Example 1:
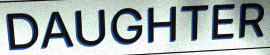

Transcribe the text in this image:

DAUGHTER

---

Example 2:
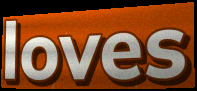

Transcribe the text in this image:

loves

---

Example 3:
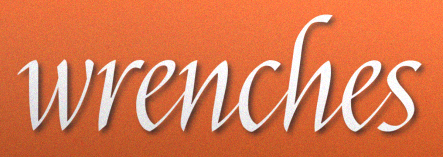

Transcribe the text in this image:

wrenches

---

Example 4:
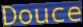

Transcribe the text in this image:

Douce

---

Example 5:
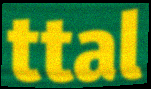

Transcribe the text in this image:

ttal